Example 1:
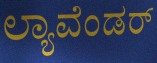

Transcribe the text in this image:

ಲ್ಯಾವೆಂಡರ್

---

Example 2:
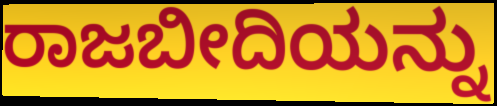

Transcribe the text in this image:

ರಾಜಬೀದಿಯನ್ನು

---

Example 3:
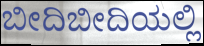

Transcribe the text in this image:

ಬೀದಿಬೀದಿಯಲ್ಲಿ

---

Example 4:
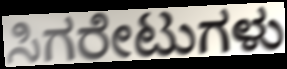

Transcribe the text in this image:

ಸಿಗರೇಟುಗಳು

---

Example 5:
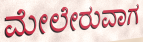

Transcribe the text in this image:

ಮೇಲೇರುವಾಗ